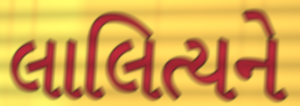
લાલિત્યને